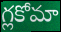
గ్లకోమా